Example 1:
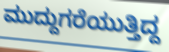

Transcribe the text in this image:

ಮುದ್ದುಗರೆಯುತ್ತಿದ್ದ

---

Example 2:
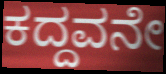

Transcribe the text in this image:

ಕದ್ದವನೇ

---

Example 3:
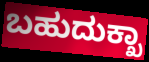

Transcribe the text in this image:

ಬಹುದುಕ್ಖಾ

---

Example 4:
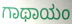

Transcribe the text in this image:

ಗಾಥಾಯಂ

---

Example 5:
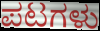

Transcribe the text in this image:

ಪಟಗಳು